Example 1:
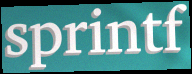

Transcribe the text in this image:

sprintf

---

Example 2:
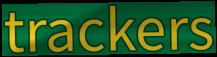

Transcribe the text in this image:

trackers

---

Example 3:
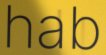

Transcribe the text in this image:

hab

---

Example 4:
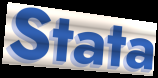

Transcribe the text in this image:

Stata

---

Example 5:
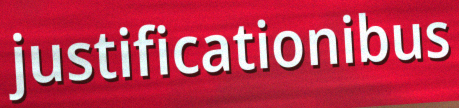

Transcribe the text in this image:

justificationibus